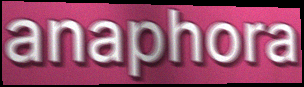
anaphora